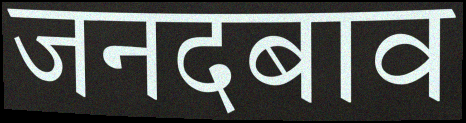
जनदबाव